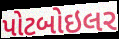
પોટબોઇલર